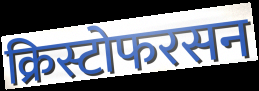
क्रिस्टोफरसन